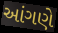
આંગણે